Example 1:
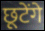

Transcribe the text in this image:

छूटेंगे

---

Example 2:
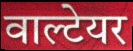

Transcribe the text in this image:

वाल्टेयर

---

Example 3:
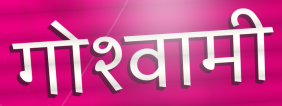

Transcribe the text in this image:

गोश्वामी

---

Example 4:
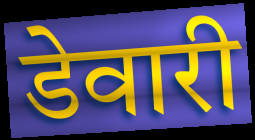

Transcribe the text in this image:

डेवारी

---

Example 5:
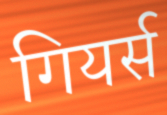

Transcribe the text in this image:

गियर्स